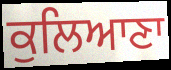
ਕੁਲਿਆਣਾ